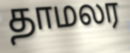
தாமலர